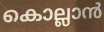
കൊല്ലാൻ